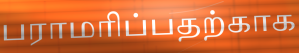
பராமரிப்பதற்காக